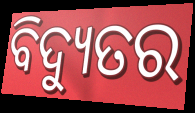
ବିଦ୍ୟୁତର